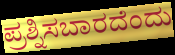
ಪ್ರಶ್ನಿಸಬಾರದೆಂದು